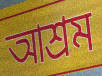
আশ্রম